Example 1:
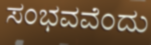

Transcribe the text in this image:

ಸಂಭವವೆಂದು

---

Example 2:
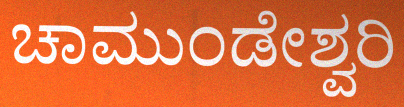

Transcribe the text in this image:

ಚಾಮುಂಡೇಶ್ವರಿ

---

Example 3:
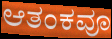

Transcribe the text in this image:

ಆತಂಕವೂ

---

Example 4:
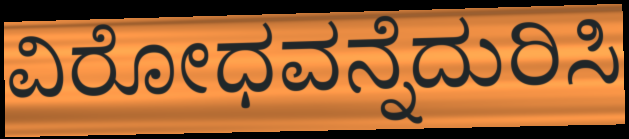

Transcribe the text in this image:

ವಿರೋಧವನ್ನೆದುರಿಸಿ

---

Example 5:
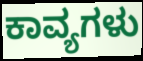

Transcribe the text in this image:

ಕಾವ್ಯಗಳು